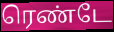
ரெண்டே